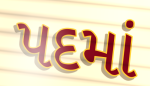
પદમાં